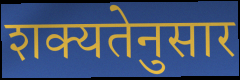
शक्यतेनुसार